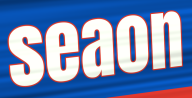
seaon